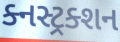
ક્નસ્ટ્રક્શન